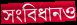
সংবিধানও